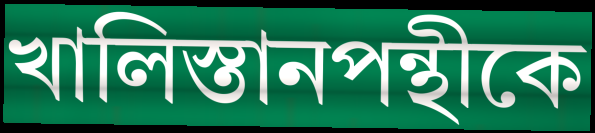
খালিস্তানপন্থীকে